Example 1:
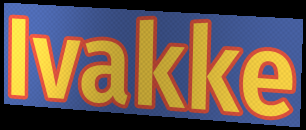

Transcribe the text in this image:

Ivakke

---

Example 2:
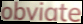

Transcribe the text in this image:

obviate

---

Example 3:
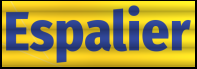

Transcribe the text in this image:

Espalier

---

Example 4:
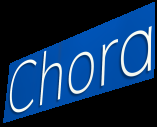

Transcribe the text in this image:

Chora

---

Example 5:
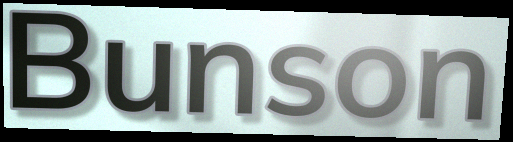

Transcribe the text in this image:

Bunson